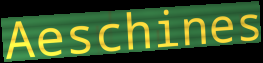
Aeschines